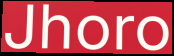
Jhoro